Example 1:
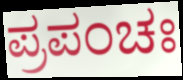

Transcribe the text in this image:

ಪ್ರಪಂಚಃ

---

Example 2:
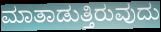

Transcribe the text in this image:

ಮಾತಾಡುತ್ತಿರುವುದು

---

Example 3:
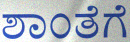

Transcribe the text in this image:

ಶಾಂತೆಗೆ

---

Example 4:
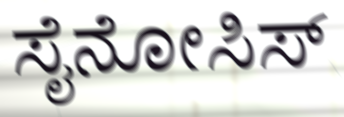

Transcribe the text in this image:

ಸೈನೋಸಿಸ್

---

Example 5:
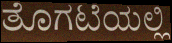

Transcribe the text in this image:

ತೊಗಟೆಯಲ್ಲಿ